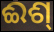
ଈଶ୍